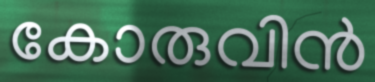
കോരുവിൻ